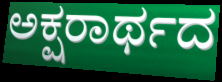
ಅಕ್ಷರಾರ್ಥದ